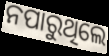
ନପାରୁଥିଲେ